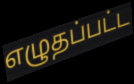
எழுதப்பட்ட